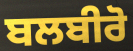
ਬਲਬੀਰੋ